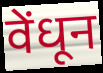
वेंधून